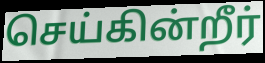
செய்கின்றீர்